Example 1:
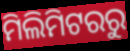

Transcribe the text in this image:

ମିଲିମିଟରରୁ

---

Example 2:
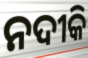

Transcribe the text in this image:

ନଦୀକି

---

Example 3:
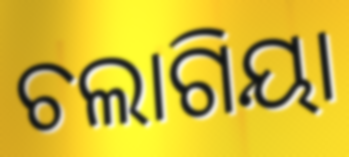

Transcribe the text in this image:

ଚଲାଗିୟା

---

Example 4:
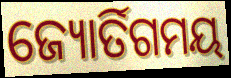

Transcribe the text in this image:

ଜ୍ୟୋର୍ତିଗମୟ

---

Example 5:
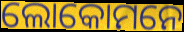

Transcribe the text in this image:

ଲୋକୋମନେ